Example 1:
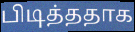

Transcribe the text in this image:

பிடித்ததாக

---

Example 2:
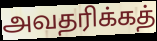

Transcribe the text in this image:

அவதரிக்கத்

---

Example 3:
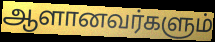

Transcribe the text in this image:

ஆளானவர்களும்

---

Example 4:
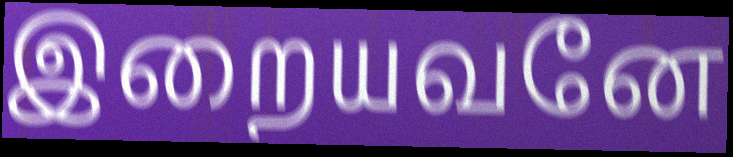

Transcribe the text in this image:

இறையவனே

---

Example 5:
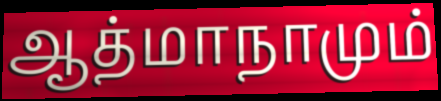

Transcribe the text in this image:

ஆத்மாநாமும்